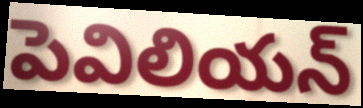
పెవిలియన్